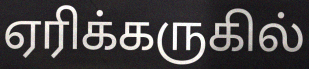
ஏரிக்கருகில்